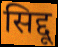
सिद्दू